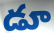
డూ